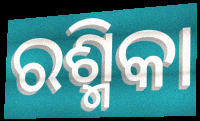
ରଶ୍ମିକା